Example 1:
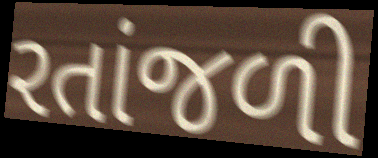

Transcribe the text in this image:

રતાંજળી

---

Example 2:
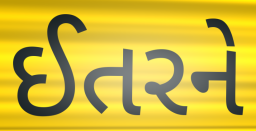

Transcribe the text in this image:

ઈતરને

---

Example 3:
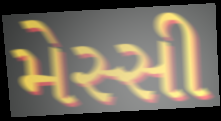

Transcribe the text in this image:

મેસ્સી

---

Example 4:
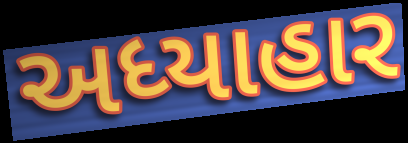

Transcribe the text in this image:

અધ્યાહાર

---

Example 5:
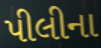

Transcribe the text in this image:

પીલીના